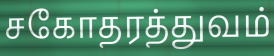
சகோதரத்துவம்